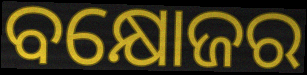
ବକ୍ଷୋଜର